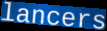
lancers